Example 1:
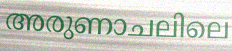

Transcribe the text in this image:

അരുണാചലിലെ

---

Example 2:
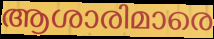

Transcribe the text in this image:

ആശാരിമാരെ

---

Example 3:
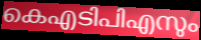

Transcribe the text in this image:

കെഎടിപിഎസും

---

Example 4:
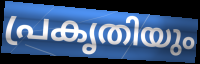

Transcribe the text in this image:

പ്രകൃതിയും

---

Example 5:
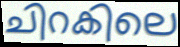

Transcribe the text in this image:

ചിറകിലെ